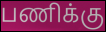
பணிக்கு